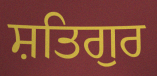
ਸ਼ਤਿਗੁਰ